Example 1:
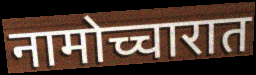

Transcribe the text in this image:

नामोच्चारात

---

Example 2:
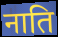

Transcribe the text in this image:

नाति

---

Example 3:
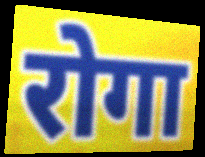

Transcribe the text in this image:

रोगा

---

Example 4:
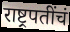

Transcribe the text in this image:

राष्ट्रपतींचं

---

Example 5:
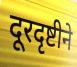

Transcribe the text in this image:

दूरदृष्टीने